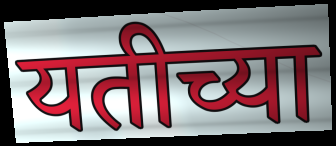
यतीच्या